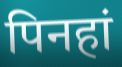
पिनहां